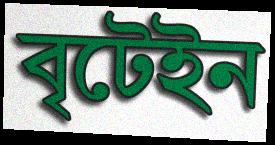
বৃটেইন